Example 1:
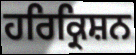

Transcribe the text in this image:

ਹਰਿਕ੍ਰਿਸ਼ਨ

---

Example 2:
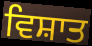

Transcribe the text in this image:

ਵਿਸ਼ਾਤ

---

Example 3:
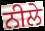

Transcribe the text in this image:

ਨੀਲੇ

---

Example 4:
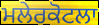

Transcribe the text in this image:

ਮਲੇਰਕੋਟਲਾ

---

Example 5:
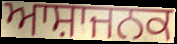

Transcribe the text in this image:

ਆਸ਼ਾਜਨਕ